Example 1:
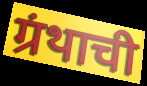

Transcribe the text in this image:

ग्रंथाची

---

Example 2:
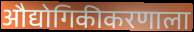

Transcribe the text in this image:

औद्योगिकीकरणाला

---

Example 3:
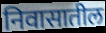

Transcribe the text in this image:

निवासातील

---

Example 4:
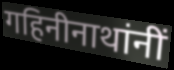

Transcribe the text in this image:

गहिनीनाथांनीं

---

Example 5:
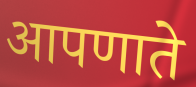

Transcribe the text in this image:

आपणाते